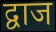
द्वाज